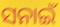
ସନାଇଁ